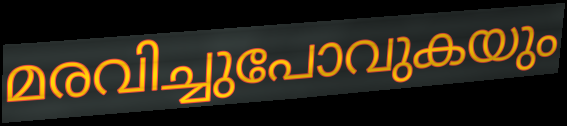
മരവിച്ചുപോവുകയും